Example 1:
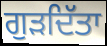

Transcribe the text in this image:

ਗੁੜਦਿੱਤਾ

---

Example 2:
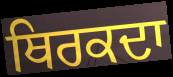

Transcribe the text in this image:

ਥਿਰਕਦਾ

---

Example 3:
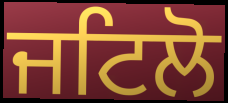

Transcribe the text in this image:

ਜਟਿਲੋ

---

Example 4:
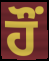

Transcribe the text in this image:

ਹੌਂ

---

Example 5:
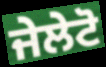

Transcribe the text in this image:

ਜੇਲੇਟੋ